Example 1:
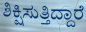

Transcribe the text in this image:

ಶಿಕ್ಷಿಸುತ್ತಿದ್ದಾರೆ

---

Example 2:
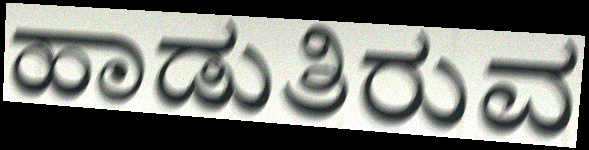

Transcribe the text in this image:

ಹಾಡುತಿರುವ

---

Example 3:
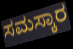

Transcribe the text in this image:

ಸಮಸ್ಕಾರ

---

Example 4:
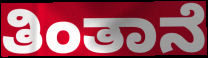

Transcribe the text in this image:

ತಿಂತಾನೆ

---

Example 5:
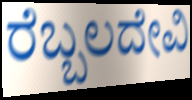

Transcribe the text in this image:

ರೆಬ್ಬಲದೇವಿ